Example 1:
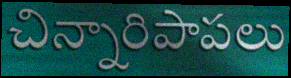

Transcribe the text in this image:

చిన్నారిపాపలు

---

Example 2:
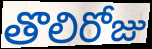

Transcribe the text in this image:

తొలిరోజు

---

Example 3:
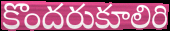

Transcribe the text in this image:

కొందరుకూలిరి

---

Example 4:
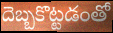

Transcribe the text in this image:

దెబ్బకొట్టడంతో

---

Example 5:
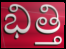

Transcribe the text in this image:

భిత్తి